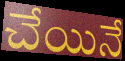
చేయినే